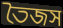
তৈজস